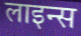
लाइन्स